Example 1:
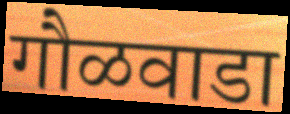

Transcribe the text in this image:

गौळवाडा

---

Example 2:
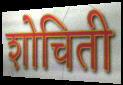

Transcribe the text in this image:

शोचिती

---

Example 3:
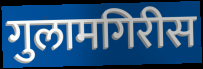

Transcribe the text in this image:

गुलामगिरीस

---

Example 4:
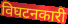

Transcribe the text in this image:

विघटनकारी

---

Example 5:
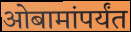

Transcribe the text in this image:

ओबामांपर्यंत